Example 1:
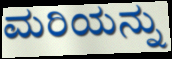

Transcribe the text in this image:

ಮರಿಯನ್ನು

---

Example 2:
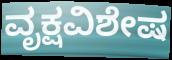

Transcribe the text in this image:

ವೃಕ್ಷವಿಶೇಷ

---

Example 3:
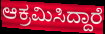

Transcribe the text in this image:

ಆಕ್ರಮಿಸಿದ್ದಾರೆ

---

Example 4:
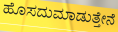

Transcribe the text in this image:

ಹೊಸದುಮಾಡುತ್ತೇನೆ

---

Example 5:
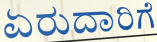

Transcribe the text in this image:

ಏರುದಾರಿಗೆ